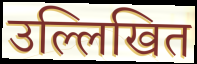
उल्लिखित